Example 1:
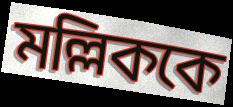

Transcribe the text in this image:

মল্লিককে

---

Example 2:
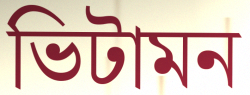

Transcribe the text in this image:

ভিটামন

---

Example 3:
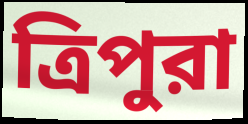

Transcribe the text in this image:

ত্রিপুরা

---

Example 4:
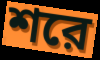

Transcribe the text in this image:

শরে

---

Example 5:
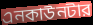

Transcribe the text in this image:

এনকাউনটার